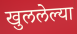
खुललेल्या